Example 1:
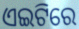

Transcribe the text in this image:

ଏଇଟିରେ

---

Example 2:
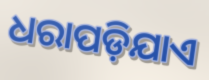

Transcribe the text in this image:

ଧରାପଡ଼ିଯାଏ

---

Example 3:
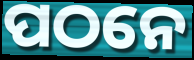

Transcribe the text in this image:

ପଠନେ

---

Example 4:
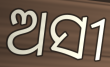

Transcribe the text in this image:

ଅସୀ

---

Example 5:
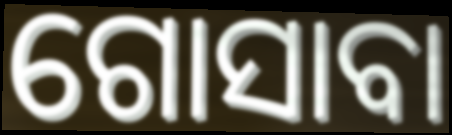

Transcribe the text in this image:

ଗୋସାବା